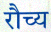
रौच्य